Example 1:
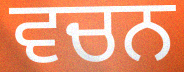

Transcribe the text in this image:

ਵਚਨ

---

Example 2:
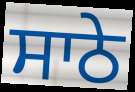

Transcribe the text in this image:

ਸਾਠੇ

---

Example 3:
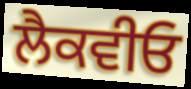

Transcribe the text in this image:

ਲੈਕਵੀਓ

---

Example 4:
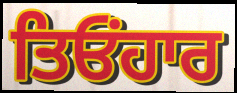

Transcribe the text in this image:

ਤਿਓਂਹਾਰ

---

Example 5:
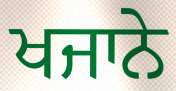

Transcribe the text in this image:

ਖਜਾਨੇ